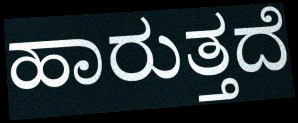
ಹಾರುತ್ತದೆ